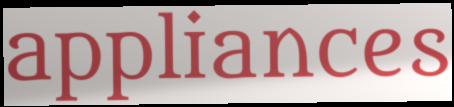
appliances